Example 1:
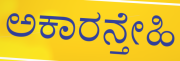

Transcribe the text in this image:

ಅಕಾರನ್ತೇಹಿ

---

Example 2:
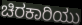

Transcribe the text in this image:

ಚಿರಕಾರಿಯು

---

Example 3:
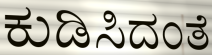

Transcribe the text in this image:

ಕುಡಿಸಿದಂತೆ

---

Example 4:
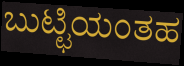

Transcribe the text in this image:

ಬುಟ್ಟಿಯಂತಹ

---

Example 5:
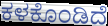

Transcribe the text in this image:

ಕಳಕೊಂಡಿದೆ